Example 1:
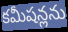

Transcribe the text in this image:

కమీషన్లను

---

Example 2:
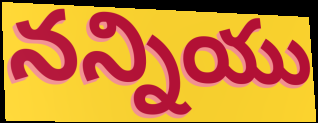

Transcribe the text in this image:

నన్నియు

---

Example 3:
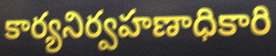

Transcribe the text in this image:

కార్యనిర్వహణాధికారి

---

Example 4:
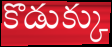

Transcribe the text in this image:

కొడుక్కు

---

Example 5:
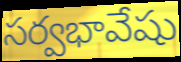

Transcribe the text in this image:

సర్వభావేషు